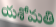
యశోమతి